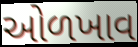
ઓળખાવ